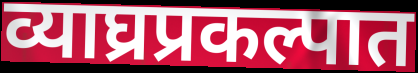
व्याघ्रप्रकल्पात